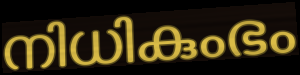
നിധികുംഭം